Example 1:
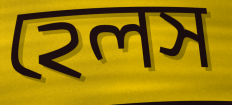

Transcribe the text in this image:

হেলস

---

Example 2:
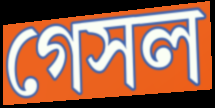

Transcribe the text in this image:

গেসল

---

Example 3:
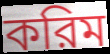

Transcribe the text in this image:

করিম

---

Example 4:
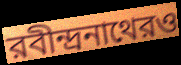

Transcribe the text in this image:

রবীন্দ্রনাথেরও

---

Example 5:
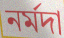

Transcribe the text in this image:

নর্মদা